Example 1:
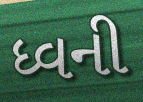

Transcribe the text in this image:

ધ્વની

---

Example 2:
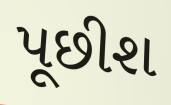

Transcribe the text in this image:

પૂછીશ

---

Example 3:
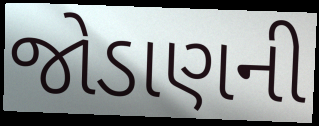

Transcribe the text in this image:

જોડાણની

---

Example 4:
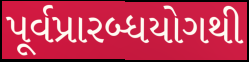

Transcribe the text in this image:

પૂર્વપ્રારબ્ધયોગથી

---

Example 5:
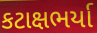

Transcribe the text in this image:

કટાક્ષભર્યા